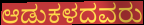
ಆಡುಕಳದವರು